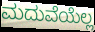
ಮದುವೆಯೆಲ್ಲ